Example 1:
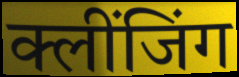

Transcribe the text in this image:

क्लींजिंग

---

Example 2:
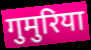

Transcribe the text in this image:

गुमुरिया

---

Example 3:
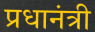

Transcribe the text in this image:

प्रधानंत्री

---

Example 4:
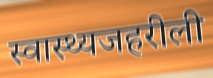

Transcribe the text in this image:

स्वास्थ्यजहरीली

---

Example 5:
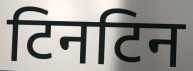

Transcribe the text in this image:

टिनटिन